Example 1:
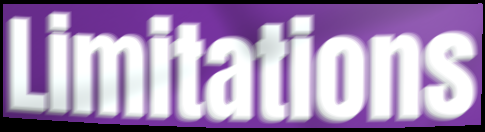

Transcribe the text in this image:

Limitations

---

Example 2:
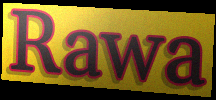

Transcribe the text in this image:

Rawa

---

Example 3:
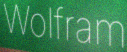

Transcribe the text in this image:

Wolfram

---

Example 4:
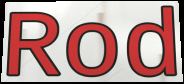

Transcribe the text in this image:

Rod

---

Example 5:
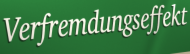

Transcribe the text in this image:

Verfremdungseffekt